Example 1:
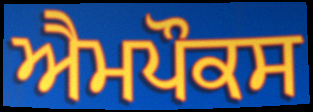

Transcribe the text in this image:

ਐਮਪੌਕਸ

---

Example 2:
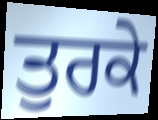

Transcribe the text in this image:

ਤੁਰਕੇ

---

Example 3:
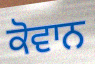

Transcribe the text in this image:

ਕੋਵਾਨ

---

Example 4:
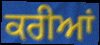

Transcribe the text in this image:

ਕਰੀਆਂ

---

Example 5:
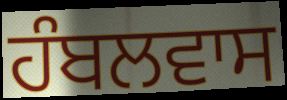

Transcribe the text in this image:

ਹੰਬਲਵਾਸ